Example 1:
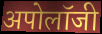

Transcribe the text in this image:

अपोलॉजी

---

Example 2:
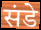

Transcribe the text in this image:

संडे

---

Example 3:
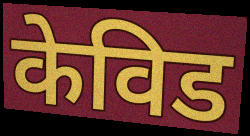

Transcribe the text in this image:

केविड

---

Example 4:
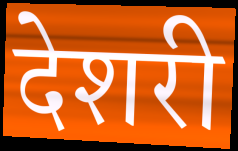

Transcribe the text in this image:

देशरी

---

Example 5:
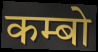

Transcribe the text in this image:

कम्बो